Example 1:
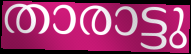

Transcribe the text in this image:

താരാട്ടു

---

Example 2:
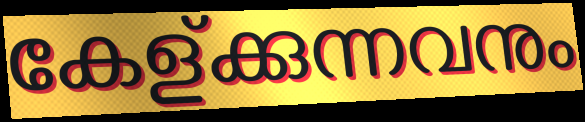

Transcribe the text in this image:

കേള്ക്കുന്നവനും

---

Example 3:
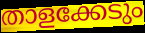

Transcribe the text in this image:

താളക്കേടും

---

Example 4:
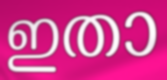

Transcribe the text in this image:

ഇതാ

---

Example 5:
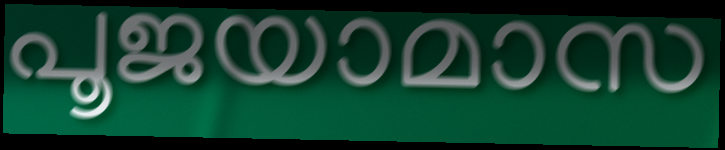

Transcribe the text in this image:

പൂജയാമാസ